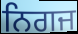
ਨਿਗਜ